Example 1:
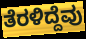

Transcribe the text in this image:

ತೆರಳಿದ್ದೆವು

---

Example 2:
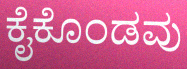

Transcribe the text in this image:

ಕೈಕೊಂಡವು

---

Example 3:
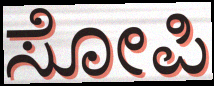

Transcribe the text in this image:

ಸೋಪಿ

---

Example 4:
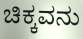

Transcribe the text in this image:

ಚಿಕ್ಕವನು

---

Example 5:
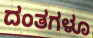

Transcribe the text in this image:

ದಂತಗಳೂ